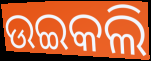
ଉଇକଲି